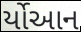
ર્યોઆન